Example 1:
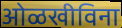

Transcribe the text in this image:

ओळखीविना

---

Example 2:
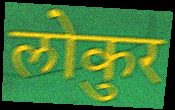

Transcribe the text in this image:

लोकुर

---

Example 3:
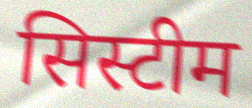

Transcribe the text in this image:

सिस्टीम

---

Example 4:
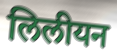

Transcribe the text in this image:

लिलीयन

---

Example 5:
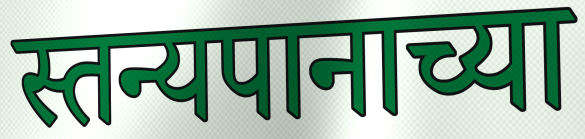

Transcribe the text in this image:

स्तन्यपानाच्या